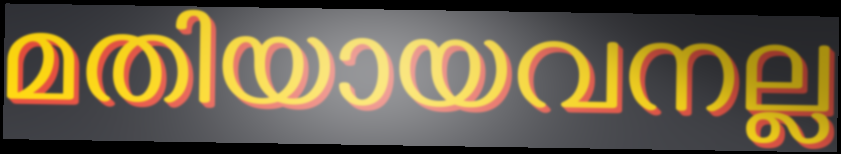
മതിയായവനല്ല